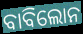
ବାବିଲୋନ